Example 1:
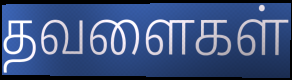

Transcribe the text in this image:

தவளைகள்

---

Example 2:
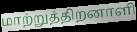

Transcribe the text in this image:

மாற்றுத்திறனாளி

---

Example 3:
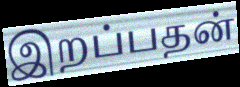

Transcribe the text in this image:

இறப்பதன்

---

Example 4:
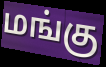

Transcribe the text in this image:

மங்கு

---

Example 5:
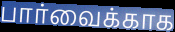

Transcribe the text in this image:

பார்வைக்காக